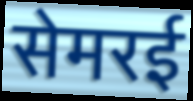
सेमरई